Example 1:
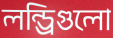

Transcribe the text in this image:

লন্ড্রিগুলো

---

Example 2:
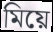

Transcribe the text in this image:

মিয়ে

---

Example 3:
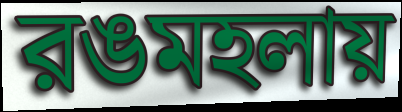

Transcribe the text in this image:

রঙমহলায়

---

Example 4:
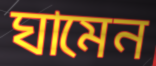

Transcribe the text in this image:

ঘামেন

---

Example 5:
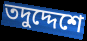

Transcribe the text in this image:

তদুদ্দেশে